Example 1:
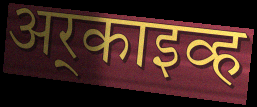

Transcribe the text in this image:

अर्काइव्ह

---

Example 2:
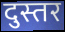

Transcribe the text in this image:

दुस्तर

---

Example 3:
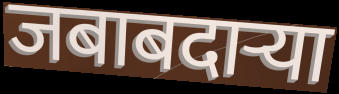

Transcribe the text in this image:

जबाबदार्‍या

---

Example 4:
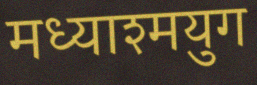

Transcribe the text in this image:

मध्याश्मयुग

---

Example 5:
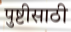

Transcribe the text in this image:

पुष्टीसाठी